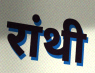
रांथी